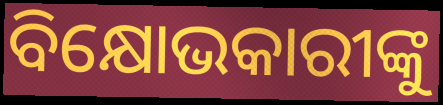
ବିକ୍ଷୋଭକାରୀଙ୍କୁ